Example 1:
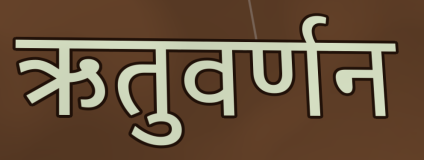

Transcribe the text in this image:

ऋतुवर्णन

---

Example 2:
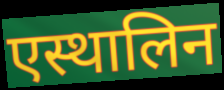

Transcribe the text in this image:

एस्थालिन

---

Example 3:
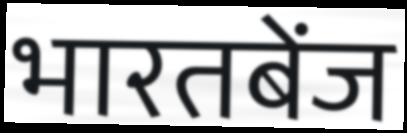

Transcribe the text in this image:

भारतबेंज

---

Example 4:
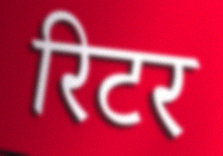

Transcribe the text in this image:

रिटर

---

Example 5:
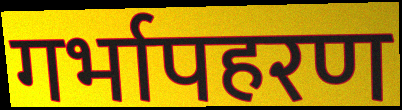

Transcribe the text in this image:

गर्भापहरण